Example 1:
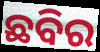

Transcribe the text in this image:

ଛବିର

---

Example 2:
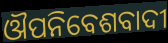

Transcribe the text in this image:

ଔପନିବେଶବାଦୀ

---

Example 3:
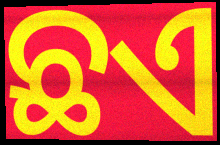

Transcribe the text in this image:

ଛଏ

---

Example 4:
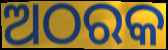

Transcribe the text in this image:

ଅଠରକ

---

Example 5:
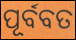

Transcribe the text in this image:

ପୂର୍ବବତ